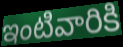
ఇంటివారికి